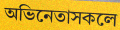
অভিনেতাসকলে